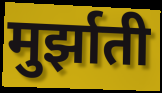
मुर्झाती